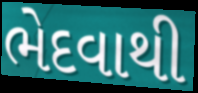
ભેદવાથી